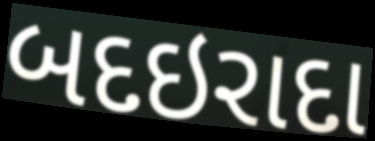
બદઇરાદા